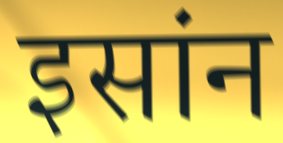
इसांन